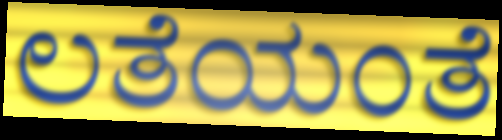
ಲತೆಯಂತೆ